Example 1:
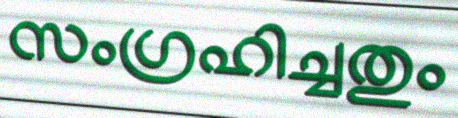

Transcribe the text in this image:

സംഗ്രഹിച്ചതും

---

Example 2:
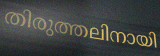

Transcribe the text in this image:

തിരുത്തലിനായി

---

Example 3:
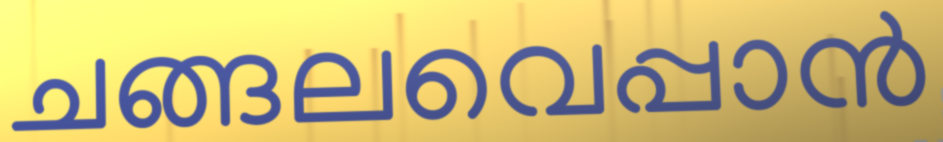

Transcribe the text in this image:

ചങ്ങലവെപ്പാൻ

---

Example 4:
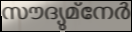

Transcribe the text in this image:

സൗദ്യുമ്നേർ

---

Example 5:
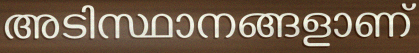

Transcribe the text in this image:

അടിസ്ഥാനങ്ങളാണ്